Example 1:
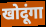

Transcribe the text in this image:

खोदूंगा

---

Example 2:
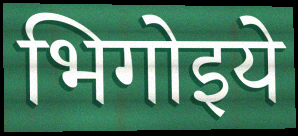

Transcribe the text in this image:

भिगोइये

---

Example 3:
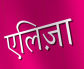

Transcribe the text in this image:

एलिज़ा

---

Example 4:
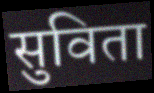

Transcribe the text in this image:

सुविता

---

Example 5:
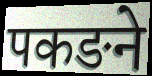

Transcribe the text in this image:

पकङने